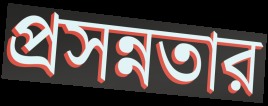
প্রসন্নতার